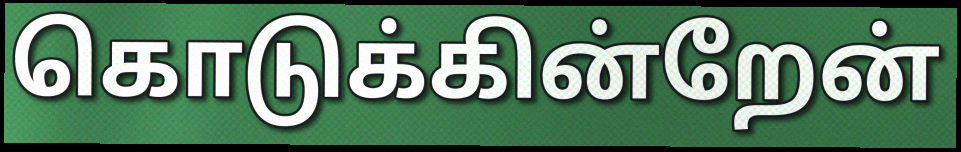
கொடுக்கின்றேன்